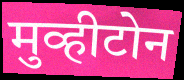
मुव्हीटोन